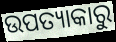
ଉପତ୍ୟାକାରୁ